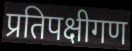
प्रतिपक्षीगण